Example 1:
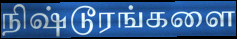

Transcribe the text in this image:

நிஷ்டூரங்களை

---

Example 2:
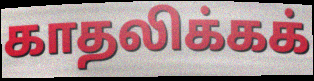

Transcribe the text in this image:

காதலிக்கக்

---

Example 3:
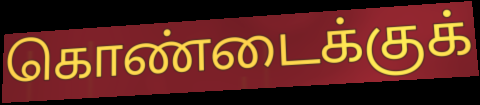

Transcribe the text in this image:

கொண்டைக்குக்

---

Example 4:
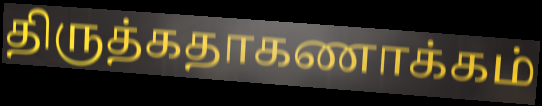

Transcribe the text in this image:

திருத்கதாகணாக்கம்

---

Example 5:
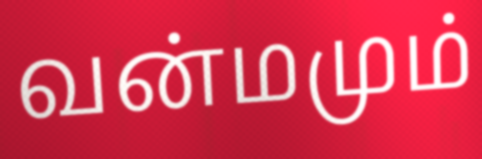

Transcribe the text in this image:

வன்மமும்